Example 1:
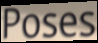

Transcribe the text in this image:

Poses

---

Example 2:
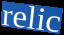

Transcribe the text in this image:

relic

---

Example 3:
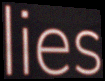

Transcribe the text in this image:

lies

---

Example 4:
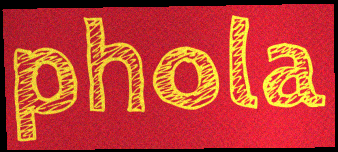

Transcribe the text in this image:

phola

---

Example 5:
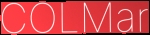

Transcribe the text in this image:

COLMar